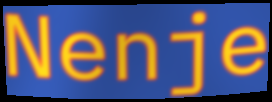
Nenje